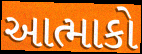
આત્માકો